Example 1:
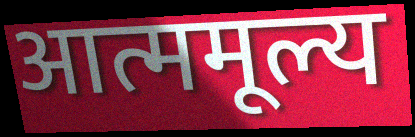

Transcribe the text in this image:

आत्ममूल्य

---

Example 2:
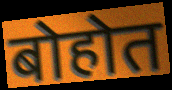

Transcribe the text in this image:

बोहोत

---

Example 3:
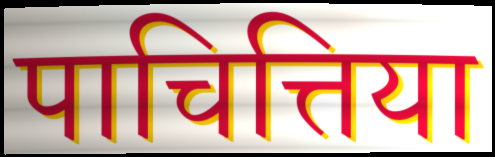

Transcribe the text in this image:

पाचित्तिया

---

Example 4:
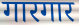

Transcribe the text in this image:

गारगार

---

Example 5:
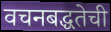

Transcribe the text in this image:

वचनबद्धतेची